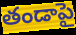
తండాపై